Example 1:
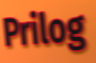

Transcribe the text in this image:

Prilog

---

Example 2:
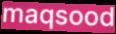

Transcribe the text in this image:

maqsood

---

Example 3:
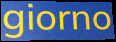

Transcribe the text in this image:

giorno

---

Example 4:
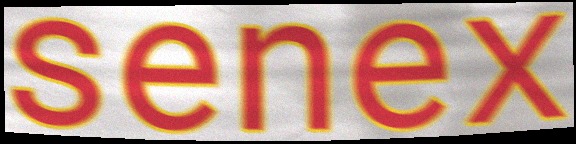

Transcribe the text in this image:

senex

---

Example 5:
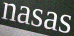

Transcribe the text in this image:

nasas